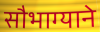
सौभाग्याने